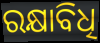
ରକ୍ଷାବିଧି